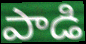
పాడి